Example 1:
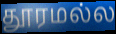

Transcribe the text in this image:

தூரமல்ல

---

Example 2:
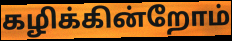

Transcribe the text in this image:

கழிக்கின்றோம்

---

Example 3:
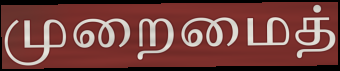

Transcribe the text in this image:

முறைமைத்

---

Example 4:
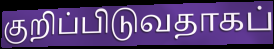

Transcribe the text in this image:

குறிப்பிடுவதாகப்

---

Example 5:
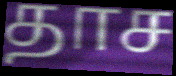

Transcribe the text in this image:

தாச